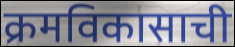
क्रमविकासाची